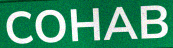
COHAB